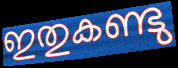
ഇതുകണ്ടു